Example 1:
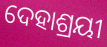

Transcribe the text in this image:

ଦେହାଶ୍ରୟୀ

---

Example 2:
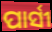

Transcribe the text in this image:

ପାର୍ସୀ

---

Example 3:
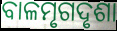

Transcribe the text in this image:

ବାଳମୃଗଦୃଶା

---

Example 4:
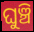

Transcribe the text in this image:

ଘୁଞ୍ଚି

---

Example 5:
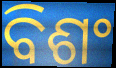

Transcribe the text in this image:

ବିଶଂ